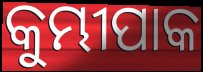
କୁମ୍ଭୀପାକ